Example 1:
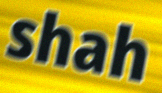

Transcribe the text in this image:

shah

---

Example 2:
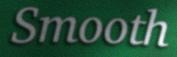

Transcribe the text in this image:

Smooth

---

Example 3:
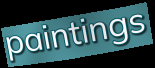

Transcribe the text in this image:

paintings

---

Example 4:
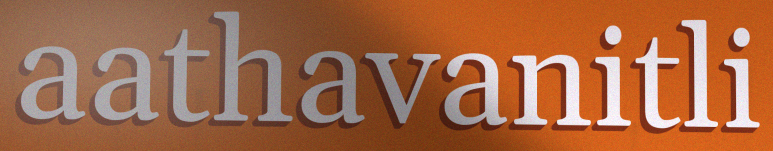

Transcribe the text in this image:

aathavanitli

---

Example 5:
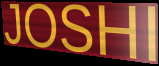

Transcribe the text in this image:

JOSHI